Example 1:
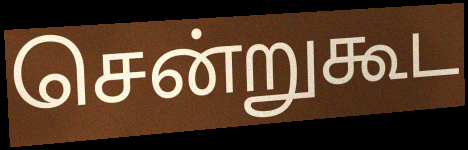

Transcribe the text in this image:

சென்றுகூட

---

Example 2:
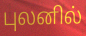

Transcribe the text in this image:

புலனில்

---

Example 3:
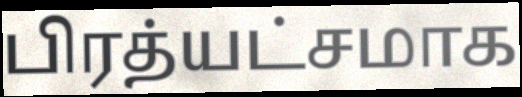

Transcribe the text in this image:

பிரத்யட்சமாக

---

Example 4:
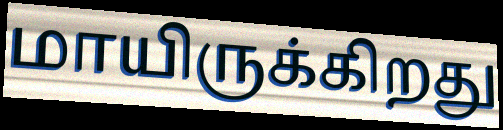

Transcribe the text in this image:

மாயிருக்கிறது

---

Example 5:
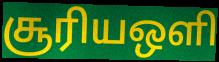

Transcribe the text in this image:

சூரியஒளி